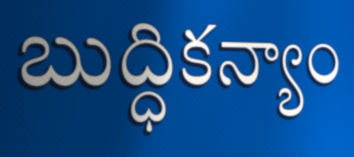
బుద్ధికన్యాం